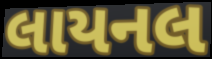
લાયનલ